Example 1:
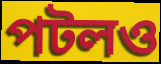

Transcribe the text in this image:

পটলও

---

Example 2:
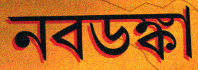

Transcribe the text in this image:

নবডঙ্কা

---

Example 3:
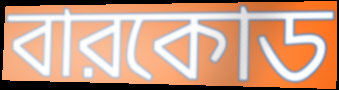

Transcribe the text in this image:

বারকোড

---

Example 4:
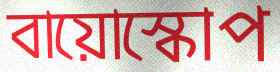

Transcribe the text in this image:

বায়োস্কোপ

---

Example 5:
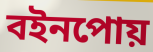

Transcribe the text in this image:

বইনপোয়